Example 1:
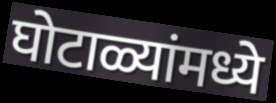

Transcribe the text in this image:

घोटाळ्यांमध्ये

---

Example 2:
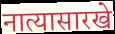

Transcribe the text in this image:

नात्यासारखे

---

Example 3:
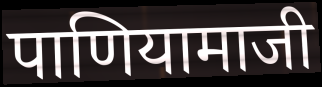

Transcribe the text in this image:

पाणियामाजी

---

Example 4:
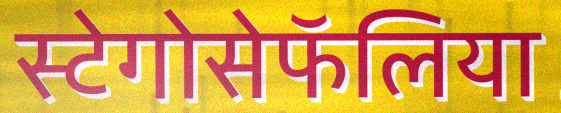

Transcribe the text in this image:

स्टेगोसेफॅलिया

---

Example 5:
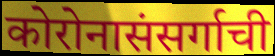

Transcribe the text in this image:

कोरोनासंसर्गाची